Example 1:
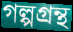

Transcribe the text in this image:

গল্পগ্রন্থ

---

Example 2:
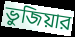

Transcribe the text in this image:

ভুজিয়ার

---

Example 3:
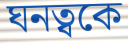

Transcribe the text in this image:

ঘনত্বকে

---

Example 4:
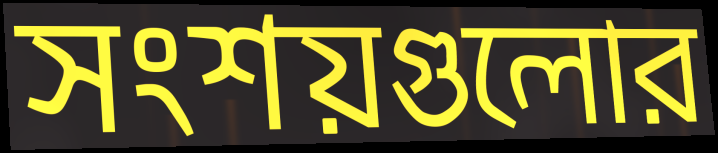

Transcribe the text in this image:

সংশয়গুলোর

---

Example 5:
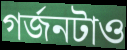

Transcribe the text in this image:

গর্জনটাও